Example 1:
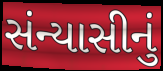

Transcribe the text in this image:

સંન્યાસીનું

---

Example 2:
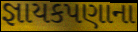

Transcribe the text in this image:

જ્ઞાયકપણાના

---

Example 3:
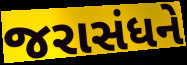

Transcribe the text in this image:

જરાસંધને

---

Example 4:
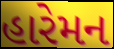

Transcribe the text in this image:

હારેમન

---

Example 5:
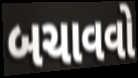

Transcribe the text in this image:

બચાવવો